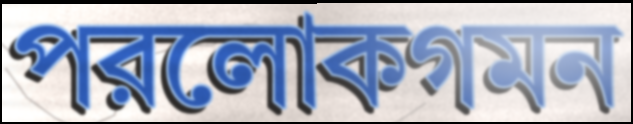
পরলোকগমন